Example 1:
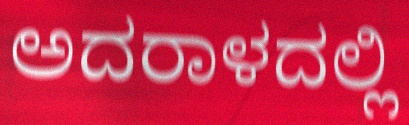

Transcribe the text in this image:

ಅದರಾಳದಲ್ಲಿ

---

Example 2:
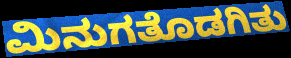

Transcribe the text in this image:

ಮಿನುಗತೊಡಗಿತು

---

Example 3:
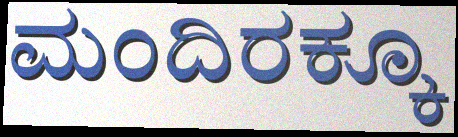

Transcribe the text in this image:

ಮಂದಿರಕ್ಕೂ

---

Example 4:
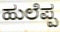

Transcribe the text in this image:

ಹುಲೆಪ್ಪ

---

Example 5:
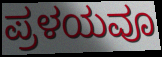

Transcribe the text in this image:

ಪ್ರಳಯವೂ